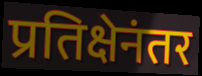
प्रतिक्षेनंतर